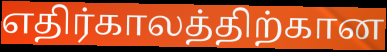
எதிர்காலத்திற்கான